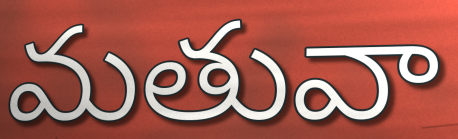
మతువా